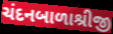
ચંદનબાળાશ્રીજી